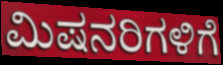
ಮಿಷನರಿಗಳಿಗೆ